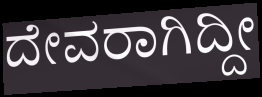
ದೇವರಾಗಿದ್ದೀ